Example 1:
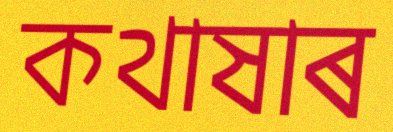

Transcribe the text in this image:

কথাষাৰ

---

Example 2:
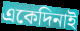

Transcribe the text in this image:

একেদিনাই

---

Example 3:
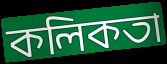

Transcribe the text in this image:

কলিকতা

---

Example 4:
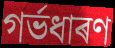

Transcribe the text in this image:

গৰ্ভধাৰণ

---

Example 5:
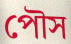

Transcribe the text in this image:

পৌস